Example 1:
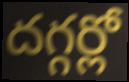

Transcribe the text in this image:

దగ్గర్లో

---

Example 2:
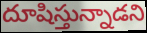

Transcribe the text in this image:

దూషిస్తున్నాడని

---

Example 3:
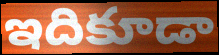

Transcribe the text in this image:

ఇదికూడా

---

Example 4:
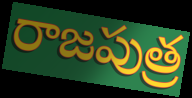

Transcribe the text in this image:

రాజపుత్ర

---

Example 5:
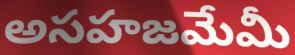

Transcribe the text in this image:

అసహజమేమీ